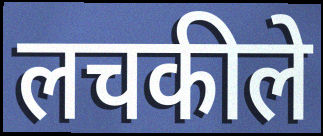
लचकीले